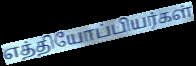
எத்தியோப்பியர்கள்